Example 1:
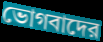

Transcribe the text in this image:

ভোগবাদের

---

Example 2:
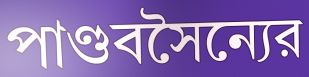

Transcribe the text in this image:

পাণ্ডবসৈন্যের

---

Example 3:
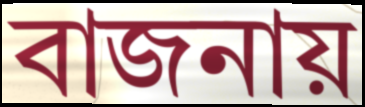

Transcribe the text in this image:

বাজনায়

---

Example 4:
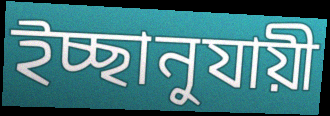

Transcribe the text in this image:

ইচ্ছানুযায়ী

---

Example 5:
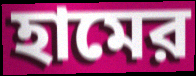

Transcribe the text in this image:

হামের